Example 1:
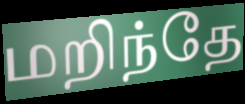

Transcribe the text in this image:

மறிந்தே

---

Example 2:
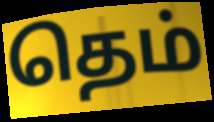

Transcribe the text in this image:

தெம்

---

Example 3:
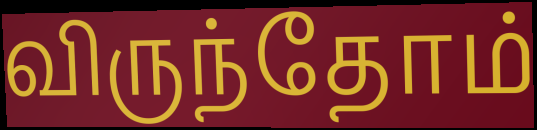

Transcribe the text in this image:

விருந்தோம்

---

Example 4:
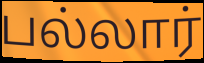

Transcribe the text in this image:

பல்லார்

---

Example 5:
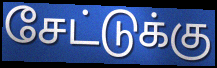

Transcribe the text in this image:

சேட்டுக்கு